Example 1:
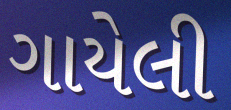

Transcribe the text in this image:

ગાયેલી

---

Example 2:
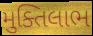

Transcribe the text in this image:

મુક્તિલાભ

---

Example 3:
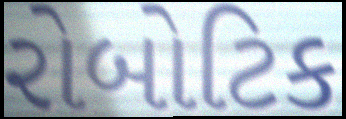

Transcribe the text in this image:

રોબોટિક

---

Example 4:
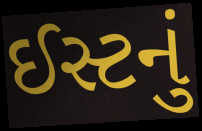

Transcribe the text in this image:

ઈસ્ટનું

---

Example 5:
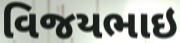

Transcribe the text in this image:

વિજયભાઇ